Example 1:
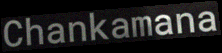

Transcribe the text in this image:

Chankamana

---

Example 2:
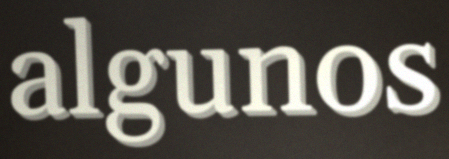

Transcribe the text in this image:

algunos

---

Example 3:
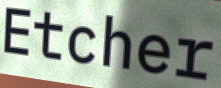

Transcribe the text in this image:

Etcher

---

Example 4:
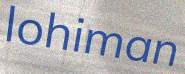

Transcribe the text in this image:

lohiman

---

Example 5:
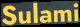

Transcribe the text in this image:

Sulami